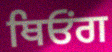
ਥਿਓਂਗ